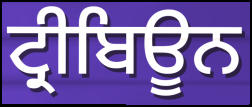
ਟ੍ਰੀਬਿਊਨ